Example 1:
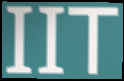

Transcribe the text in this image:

IIT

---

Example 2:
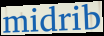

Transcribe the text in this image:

midrib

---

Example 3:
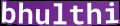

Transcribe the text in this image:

bhulthi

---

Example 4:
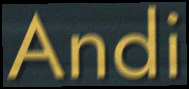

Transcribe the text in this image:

Andi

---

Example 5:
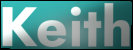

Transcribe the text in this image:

Keith